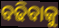
ବଢିବାକୁ